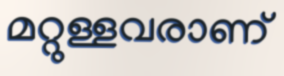
മറ്റുള്ളവരാണ്